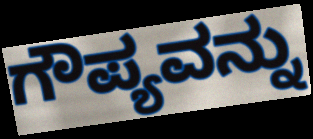
ಗೌಪ್ಯವನ್ನು